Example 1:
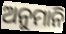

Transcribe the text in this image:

ଅନୁମାନି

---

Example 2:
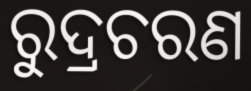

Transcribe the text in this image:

ରୁଦ୍ରଚରଣ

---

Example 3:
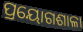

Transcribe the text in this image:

ପ୍ରୟୋଗଶାଳା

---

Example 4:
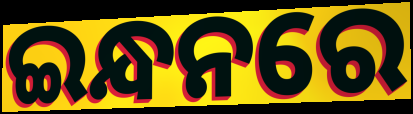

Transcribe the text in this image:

ଇନ୍ଧନରେ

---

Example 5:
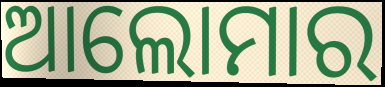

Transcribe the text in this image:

ଆଲୋମାର